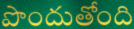
పొందుతోంది